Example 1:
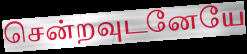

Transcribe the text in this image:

சென்றவுடனேயே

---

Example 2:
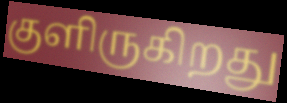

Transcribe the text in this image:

குளிருகிறது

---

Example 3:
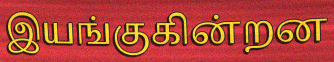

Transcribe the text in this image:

இயங்குகின்றன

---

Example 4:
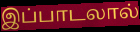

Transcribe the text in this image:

இப்பாடலால்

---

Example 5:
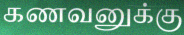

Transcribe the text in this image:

கணவனுக்கு